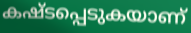
കഷ്ടപ്പെടുകയാണ്